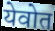
येवोत